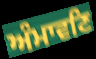
ਅੰਮਾਵਣਿ